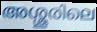
അശ്ശൂരിലെ